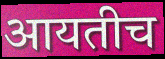
आयतीच